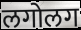
लगोलग